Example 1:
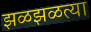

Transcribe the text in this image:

झळझळत्या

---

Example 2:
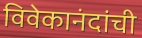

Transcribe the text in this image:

विवेकानंदांची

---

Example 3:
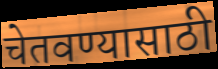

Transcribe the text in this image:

चेतवण्यासाठी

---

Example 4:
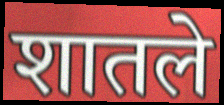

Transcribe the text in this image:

शातले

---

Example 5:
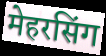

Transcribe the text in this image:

मेहरसिंग